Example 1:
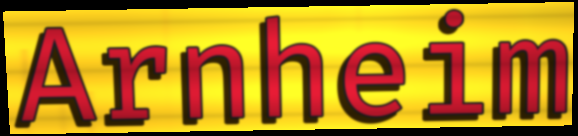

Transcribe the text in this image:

Arnheim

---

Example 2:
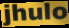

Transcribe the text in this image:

jhulo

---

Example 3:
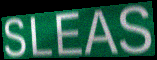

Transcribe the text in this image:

SLEAS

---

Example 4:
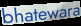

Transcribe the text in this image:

bhatewara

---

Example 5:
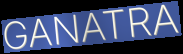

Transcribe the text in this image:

GANATRA